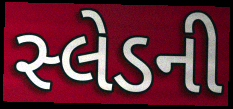
સ્લેડની